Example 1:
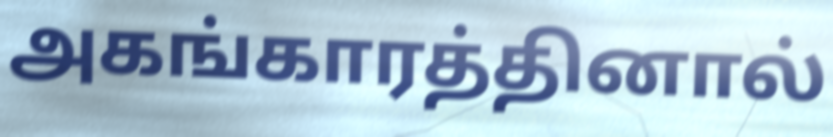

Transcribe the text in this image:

அகங்காரத்தினால்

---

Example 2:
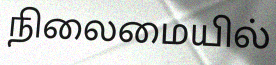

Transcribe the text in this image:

நிலைமையில்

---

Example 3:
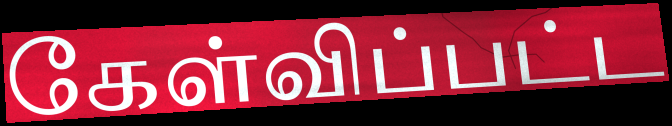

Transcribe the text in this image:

கேள்விப்பட்ட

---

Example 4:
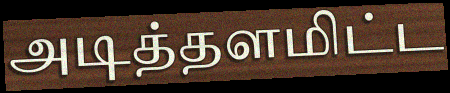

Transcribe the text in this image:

அடித்தளமிட்ட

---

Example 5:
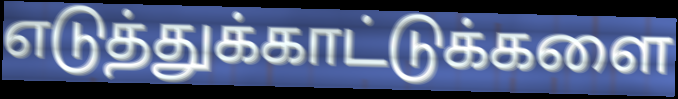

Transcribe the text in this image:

எடுத்துக்காட்டுக்களை